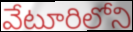
వేటూరిలోని